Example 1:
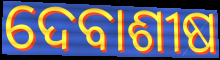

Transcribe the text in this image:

ଦେବାଶୀଷ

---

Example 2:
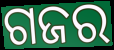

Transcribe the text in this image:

ଗଜର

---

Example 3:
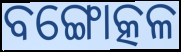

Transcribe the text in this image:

ବଙ୍ଗୋତ୍କଳ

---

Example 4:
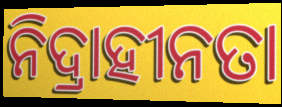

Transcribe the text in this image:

ନିଦ୍ରାହୀନତା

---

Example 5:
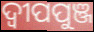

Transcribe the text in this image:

ଦ୍ୱୀପପୁଞ୍ଜ